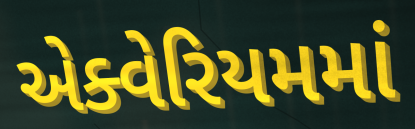
એક્વેરિયમમાં